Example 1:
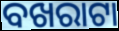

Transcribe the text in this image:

ବଖରାଟା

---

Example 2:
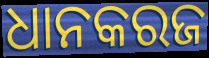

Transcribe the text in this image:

ଧାନକରଜ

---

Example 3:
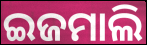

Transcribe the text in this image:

ଇଜମାଲି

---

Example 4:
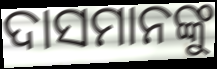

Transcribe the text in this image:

ଦାସମାନଙ୍କୁ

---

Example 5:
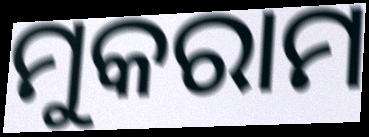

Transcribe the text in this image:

ମୁକରାମ